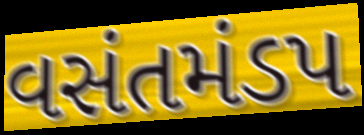
વસંતમંડપ